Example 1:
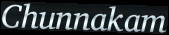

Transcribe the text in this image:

Chunnakam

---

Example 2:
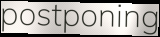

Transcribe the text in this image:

postponing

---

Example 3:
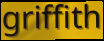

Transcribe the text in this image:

griffith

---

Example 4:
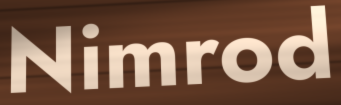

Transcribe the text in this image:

Nimrod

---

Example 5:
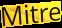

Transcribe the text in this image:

Mitre